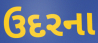
ઉદરના